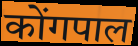
कोंगपाल